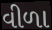
વીળા